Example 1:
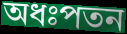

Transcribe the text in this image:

অধঃপতন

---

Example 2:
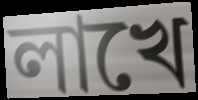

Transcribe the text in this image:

লাখে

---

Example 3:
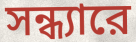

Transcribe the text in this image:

সন্ধ্যারে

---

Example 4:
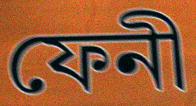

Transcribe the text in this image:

ফেনী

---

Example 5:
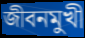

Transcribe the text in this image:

জীবনমুখী